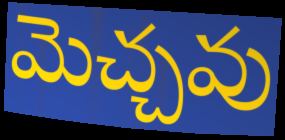
మెచ్చవు